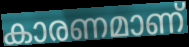
കാരണമാണ്